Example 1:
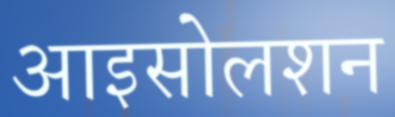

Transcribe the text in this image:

आइसोलशन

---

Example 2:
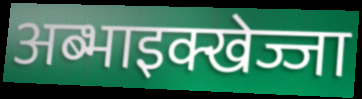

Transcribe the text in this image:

अब्भाइक्खेज्जा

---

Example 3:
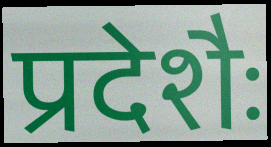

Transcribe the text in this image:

प्रदेशैः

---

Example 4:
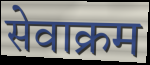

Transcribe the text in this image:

सेवाक्रम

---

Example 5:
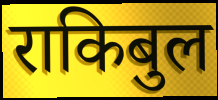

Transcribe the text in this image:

राकिबुल